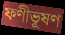
ফণীভূষণ